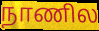
நாணில